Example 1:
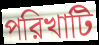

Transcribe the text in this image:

পরিখাটি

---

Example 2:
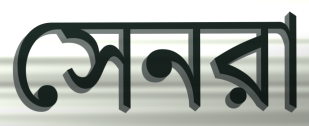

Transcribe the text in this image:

সেনরা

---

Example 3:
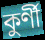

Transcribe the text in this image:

কুর্ণী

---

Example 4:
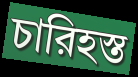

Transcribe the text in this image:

চারিহস্ত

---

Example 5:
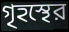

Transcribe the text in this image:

গৃহস্থের